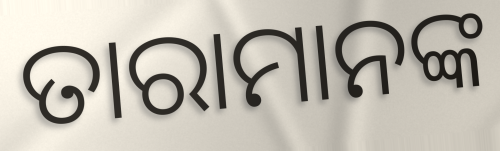
ତାରାମାନଙ୍କ